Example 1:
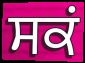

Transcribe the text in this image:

ਸਕਂ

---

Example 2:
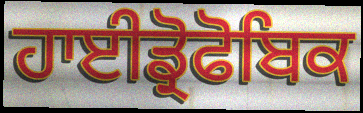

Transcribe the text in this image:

ਹਾਈਡ੍ਰੋਫੋਬਿਕ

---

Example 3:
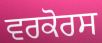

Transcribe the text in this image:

ਵਰਕੋਰਸ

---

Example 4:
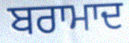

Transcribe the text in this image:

ਬਰਾਮਾਦ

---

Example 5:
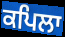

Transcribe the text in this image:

ਕਪਿਲਾ